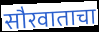
सौरवाताचा